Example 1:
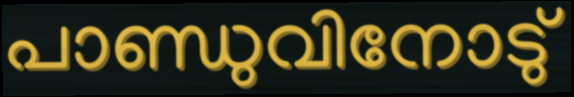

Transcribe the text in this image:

പാണ്ഡുവിനോടു്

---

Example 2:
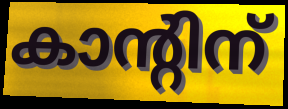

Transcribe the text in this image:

കാന്റിന്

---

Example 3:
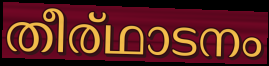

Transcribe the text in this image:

തീര്ഥാടനം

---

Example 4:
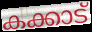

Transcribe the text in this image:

കക്കാട്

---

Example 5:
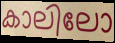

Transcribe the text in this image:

കാലിലോ